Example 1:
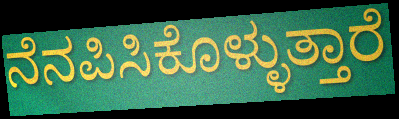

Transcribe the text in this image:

ನೆನಪಿಸಿಕೊಳ್ಳುತ್ತಾರೆ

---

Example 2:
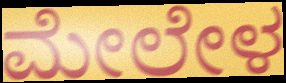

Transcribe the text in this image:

ಮೇಲೇಳ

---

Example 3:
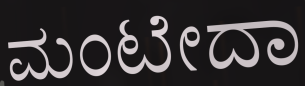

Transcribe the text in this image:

ಮಂಟೇದಾ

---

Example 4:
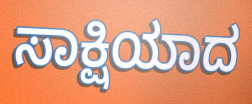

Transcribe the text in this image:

ಸಾಕ್ಷಿಯಾದ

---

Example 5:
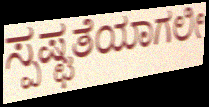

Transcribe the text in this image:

ಸ್ಪಷ್ಟತೆಯಾಗಲೀ